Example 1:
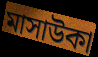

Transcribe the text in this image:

মাসাউকা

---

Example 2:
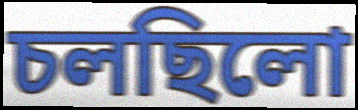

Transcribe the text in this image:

চলছিলো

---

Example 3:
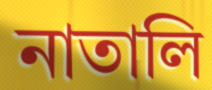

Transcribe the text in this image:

নাতালি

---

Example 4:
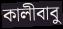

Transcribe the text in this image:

কালীবাবু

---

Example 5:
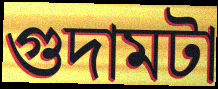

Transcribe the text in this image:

গুদামটা